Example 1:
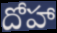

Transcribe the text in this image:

దోహా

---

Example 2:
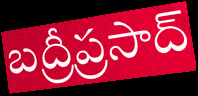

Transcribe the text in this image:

బద్రీప్రసాద్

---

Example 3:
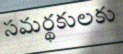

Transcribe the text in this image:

సమర్థకులకు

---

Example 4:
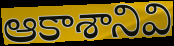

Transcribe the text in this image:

ఆకాశానివి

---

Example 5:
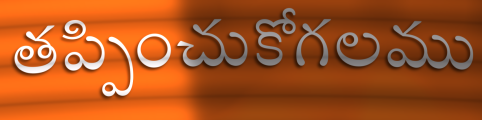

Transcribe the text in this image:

తప్పించుకోగలము